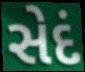
સેદં